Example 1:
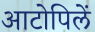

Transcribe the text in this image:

आटोपिलें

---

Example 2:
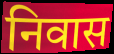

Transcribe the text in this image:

निवास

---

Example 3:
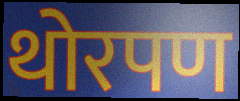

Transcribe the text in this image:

थोरपण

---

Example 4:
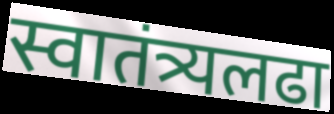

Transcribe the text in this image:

स्वातंत्र्यलढा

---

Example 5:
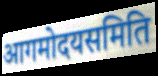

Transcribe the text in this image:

आगमोदयसमिति